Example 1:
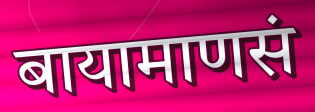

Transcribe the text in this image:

बायामाणसं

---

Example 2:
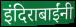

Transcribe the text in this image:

इंदिराबाईंनी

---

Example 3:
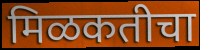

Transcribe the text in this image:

मिळकतीचा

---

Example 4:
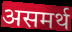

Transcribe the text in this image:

असमर्थ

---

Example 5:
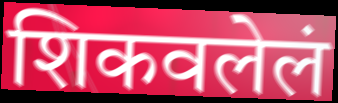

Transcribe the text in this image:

शिकवलेलं